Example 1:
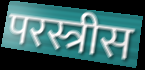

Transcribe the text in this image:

परस्त्रीस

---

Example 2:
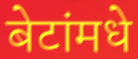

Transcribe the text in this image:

बेटांमधे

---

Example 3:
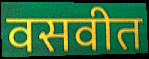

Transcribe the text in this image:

वसवीत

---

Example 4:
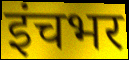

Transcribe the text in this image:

इंचभर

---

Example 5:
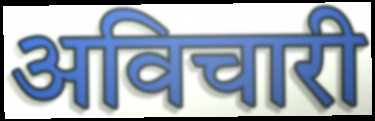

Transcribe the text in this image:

अविचारी